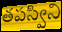
తపస్విని